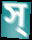
স্